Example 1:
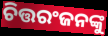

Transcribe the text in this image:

ଚିତ୍ତରଂଜନଙ୍କୁ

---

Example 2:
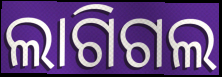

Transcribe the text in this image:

ଲାଗିଗଲ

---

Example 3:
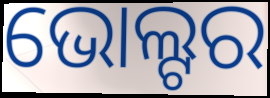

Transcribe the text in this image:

ଭୋଲ୍ଟର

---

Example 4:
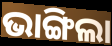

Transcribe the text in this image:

ଭାଙ୍ଗିଲା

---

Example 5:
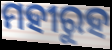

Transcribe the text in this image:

ମହୀରୁହ